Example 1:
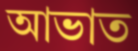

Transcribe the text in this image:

আভাত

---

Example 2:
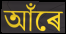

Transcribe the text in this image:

আঁৰে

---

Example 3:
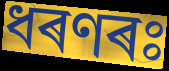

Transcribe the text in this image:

ধৰণৰঃ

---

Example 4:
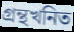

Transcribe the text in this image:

গ্ৰন্থখনিত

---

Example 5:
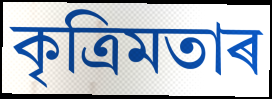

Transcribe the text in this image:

কৃত্ৰিমতাৰ